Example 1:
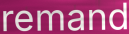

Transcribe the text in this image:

remand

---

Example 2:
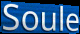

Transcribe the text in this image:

Soule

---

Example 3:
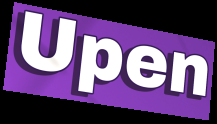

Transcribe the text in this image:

Upen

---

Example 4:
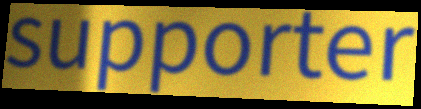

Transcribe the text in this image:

supporter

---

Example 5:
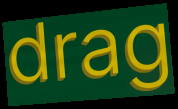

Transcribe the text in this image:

drag